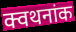
क्वथनांक